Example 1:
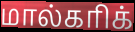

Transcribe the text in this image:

மால்கரிக்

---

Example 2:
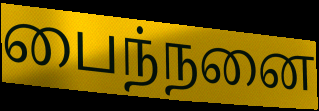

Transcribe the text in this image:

பைந்நனை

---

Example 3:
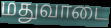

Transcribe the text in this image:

மதுவாடை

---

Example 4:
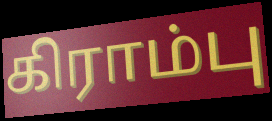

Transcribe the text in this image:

கிராம்பு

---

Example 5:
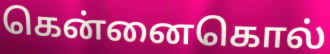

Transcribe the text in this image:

கென்னைகொல்